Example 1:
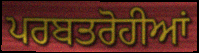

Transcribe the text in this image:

ਪਰਬਤਰੋਹੀਆਂ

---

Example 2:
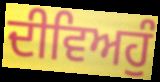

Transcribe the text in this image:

ਦੀਵਿਅਹੁੰ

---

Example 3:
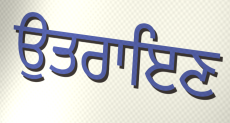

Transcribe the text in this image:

ਉਤਰਾਇਣ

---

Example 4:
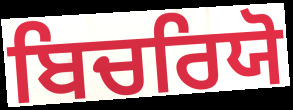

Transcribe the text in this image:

ਬਿਚਰਿਯੋ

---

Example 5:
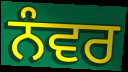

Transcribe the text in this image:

ਨੰਵਰ